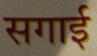
सगाई